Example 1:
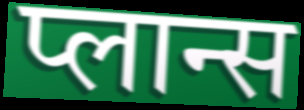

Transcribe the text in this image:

प्‍लान्‍स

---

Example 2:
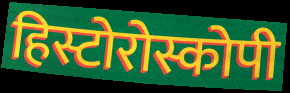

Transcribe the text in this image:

हिस्टोरोस्कोपी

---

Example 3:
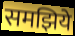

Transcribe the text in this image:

समझिये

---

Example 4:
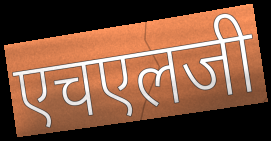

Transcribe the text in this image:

एचएलजी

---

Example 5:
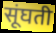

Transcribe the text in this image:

सूंघती